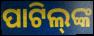
ପାଟିଲ୍‌ଙ୍କ